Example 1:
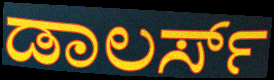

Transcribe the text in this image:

ಡಾಲರ್ಸ್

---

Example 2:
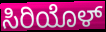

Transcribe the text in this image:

ಸಿರಿಯೊಳ್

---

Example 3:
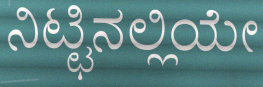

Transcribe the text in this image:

ನಿಟ್ಟಿನಲ್ಲಿಯೇ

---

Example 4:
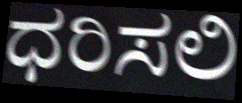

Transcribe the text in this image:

ಧರಿಸಲಿ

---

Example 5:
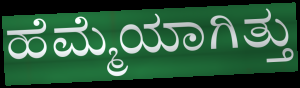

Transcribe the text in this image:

ಹೆಮ್ಮೆಯಾಗಿತ್ತು